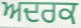
ਅਦਰਕ